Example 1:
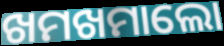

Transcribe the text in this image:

ଖମଖମାଲୋ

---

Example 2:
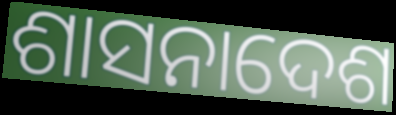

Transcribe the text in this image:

ଶାସନାଦେଶ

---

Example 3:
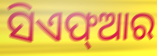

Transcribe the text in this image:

ସିଏଫ୍ଆର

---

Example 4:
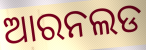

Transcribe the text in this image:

ଆରନଲଡ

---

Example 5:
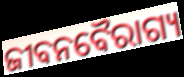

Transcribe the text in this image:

ଜୀବନବୈରାଗ୍ୟ